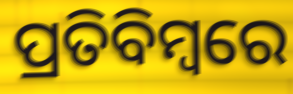
ପ୍ରତିବିମ୍ବରେ